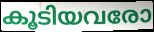
കൂടിയവരോ